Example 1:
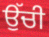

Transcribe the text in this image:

ਉੱਚੀ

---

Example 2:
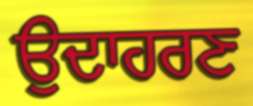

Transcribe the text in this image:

ਉਦਾਹਰਣ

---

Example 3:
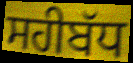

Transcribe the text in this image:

ਸਹੀਬੱਧ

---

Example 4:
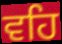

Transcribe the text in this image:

ਵਹਿ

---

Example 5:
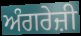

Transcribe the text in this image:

ਅੰਗਰੇਜ਼ੀ